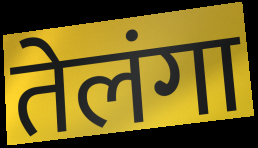
तेलंगा